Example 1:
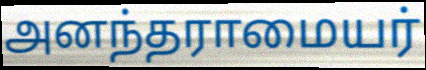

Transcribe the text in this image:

அனந்தராமையர்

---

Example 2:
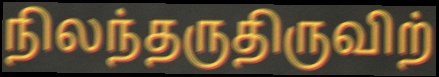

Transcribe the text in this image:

நிலந்தருதிருவிற்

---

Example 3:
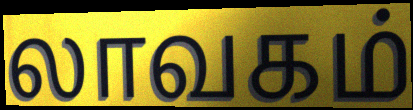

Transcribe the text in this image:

லாவகம்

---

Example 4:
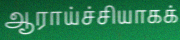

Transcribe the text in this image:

ஆராய்ச்சியாகக்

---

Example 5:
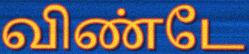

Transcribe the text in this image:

விண்டே